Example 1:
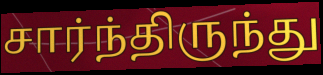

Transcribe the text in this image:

சார்ந்திருந்து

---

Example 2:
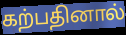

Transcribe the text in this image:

கற்பதினால்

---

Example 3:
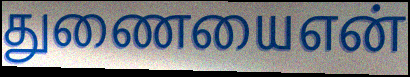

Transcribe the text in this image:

துணையைஎன்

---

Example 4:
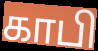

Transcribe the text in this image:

காபி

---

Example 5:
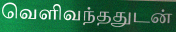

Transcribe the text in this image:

வெளிவந்ததுடன்